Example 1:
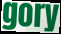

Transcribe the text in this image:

gory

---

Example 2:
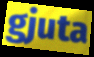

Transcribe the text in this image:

gjuta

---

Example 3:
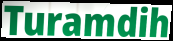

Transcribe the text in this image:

Turamdih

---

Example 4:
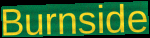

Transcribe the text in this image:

Burnside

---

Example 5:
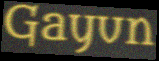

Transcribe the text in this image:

Gayun